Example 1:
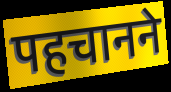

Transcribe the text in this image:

पहचानने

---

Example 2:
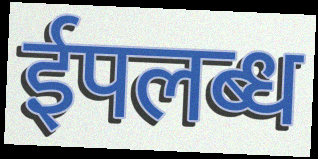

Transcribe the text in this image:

ईपलब्ध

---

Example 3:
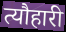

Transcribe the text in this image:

त्यौहारी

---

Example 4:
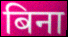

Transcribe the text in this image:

बिना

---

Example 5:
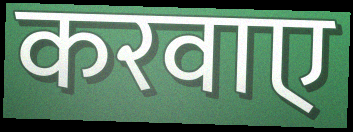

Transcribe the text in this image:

करवाए